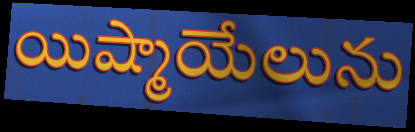
యిష్మాయేలును